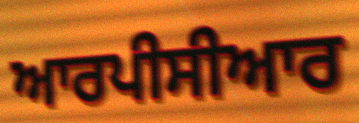
ਆਰਪੀਸੀਆਰ